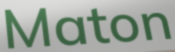
Maton